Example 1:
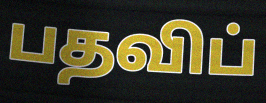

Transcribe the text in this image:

பதவிப்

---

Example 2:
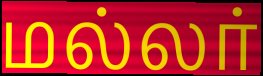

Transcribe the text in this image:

மல்லர்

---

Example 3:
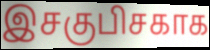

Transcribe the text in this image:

இசகுபிசகாக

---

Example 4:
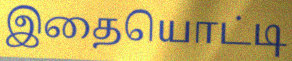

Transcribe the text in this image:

இதையொட்டி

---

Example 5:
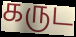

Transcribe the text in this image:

கருட